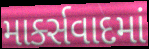
માર્ક્સવાદમાં